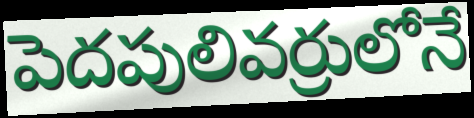
పెదపులివర్రులోనే